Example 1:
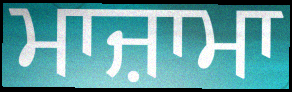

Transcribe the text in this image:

ਮਾਜ਼ਾਮਾ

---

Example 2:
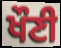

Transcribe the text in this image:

ਖੌਣੀ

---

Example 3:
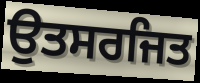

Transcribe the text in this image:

ਉਤਸਰਜਿਤ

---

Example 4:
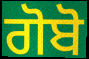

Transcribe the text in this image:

ਗੋਬੋ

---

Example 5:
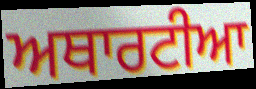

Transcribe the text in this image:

ਅਥਾਰਟੀਆ